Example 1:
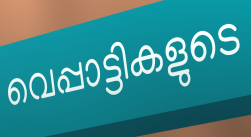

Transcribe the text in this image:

വെപ്പാട്ടികളുടെ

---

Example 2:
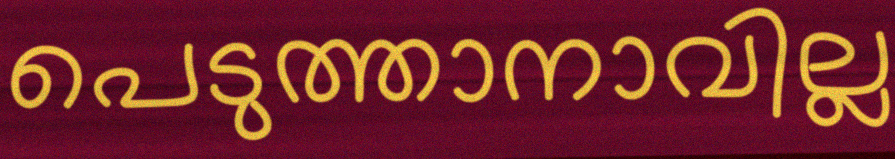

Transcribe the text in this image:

പെടുത്താനാവില്ല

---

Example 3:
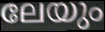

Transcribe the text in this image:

ലേയും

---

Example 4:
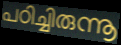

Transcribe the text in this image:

പഠിച്ചിരുന്നൂ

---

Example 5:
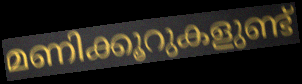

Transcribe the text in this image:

മണിക്കൂറുകളുണ്ട്